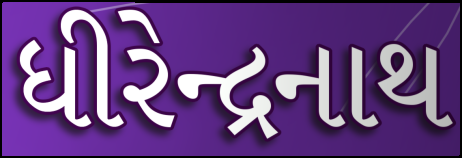
ધીરેન્દ્રનાથ